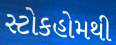
સ્ટોકહોમથી